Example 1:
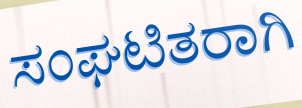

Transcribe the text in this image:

ಸಂಘಟಿತರಾಗಿ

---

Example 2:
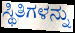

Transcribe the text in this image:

ಸ್ಥಿತಿಗಳನ್ನು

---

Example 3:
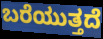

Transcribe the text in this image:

ಬರೆಯುತ್ತದೆ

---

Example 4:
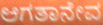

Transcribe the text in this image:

ಆಗತಾನೇವ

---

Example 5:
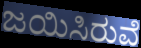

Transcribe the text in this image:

ಜಯಿಸಿರುವೆ